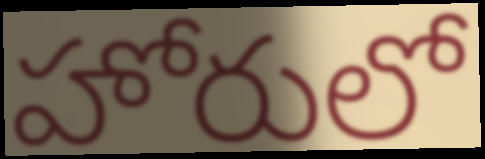
హోరులో